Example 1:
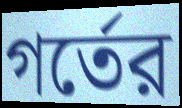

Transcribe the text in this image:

গর্তের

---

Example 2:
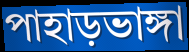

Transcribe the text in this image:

পাহাড়ভাঙ্গা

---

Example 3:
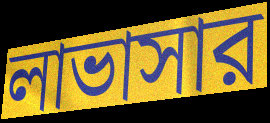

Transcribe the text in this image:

লাভাসার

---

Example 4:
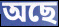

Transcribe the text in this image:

অছে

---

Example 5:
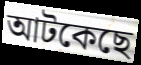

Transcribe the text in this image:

আটকেছে